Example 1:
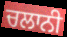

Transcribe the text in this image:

ਚਲਾਨੀ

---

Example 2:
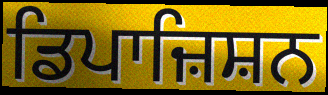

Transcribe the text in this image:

ਡਿਪਾਜ਼ਿਸ਼ਨ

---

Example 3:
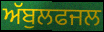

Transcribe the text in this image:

ਅੱਬੁਲਫਜਲ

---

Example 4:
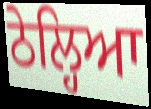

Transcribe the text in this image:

ਠੇਲ੍ਹਿਆ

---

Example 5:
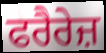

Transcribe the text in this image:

ਫਰੈਰੇਜ਼